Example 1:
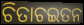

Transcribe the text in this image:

ଚିତାଚଇତନ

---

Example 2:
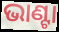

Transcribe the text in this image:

ଭାଣ୍ଟା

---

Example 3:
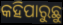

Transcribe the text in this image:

କହିପାରୁଛୁ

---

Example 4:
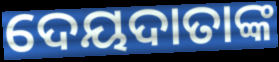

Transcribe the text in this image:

ଦେୟଦାତାଙ୍କ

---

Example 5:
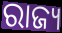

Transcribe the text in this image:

ରାଜ୍ଯ